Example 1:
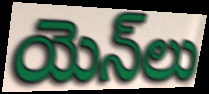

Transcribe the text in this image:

యెన్‌లు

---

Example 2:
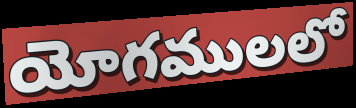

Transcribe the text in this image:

యోగములలో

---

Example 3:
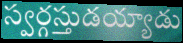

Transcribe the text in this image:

స్వర్గస్తుడయ్యాడు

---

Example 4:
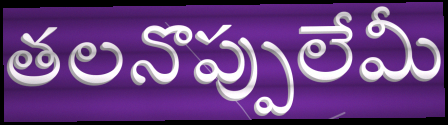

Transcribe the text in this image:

తలనొప్పులేమీ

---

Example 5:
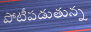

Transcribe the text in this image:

పోటీపడుతున్న